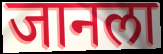
जानला